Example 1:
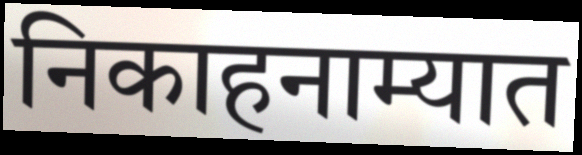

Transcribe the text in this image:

निकाहनाम्यात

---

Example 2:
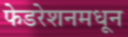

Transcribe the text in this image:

फेडरेशनमधून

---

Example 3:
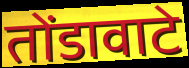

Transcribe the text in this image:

तोंडावाटे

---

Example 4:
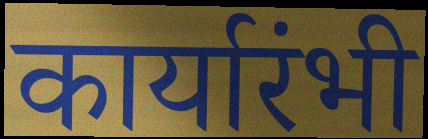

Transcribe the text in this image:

कार्यारंभी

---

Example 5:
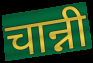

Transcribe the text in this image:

चान्नी